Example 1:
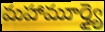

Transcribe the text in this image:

మహామూర్త్యై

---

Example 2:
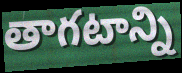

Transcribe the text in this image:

తాగటాన్ని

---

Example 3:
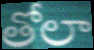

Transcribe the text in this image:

తోలా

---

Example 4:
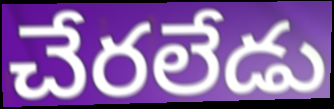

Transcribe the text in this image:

చేరలేడు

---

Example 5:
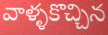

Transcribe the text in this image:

వాళ్ళకొచ్చిన